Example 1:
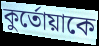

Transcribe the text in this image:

কুর্তোয়াকে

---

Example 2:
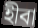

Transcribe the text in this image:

হীবা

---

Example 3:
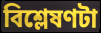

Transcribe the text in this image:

বিশ্লেষণটা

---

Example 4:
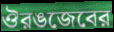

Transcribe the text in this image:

ঔরঙজেবের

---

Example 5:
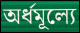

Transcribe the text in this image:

অর্ধমূল্যে